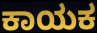
ಕಾಯಕ